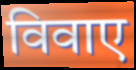
विवाए